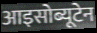
आइसोब्यूटेन